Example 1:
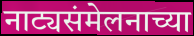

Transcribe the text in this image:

नाट्यसंमेलनाच्या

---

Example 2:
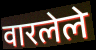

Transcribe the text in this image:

वारलेले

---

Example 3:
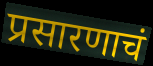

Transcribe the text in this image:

प्रसारणाचं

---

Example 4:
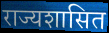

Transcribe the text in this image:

राज्यशासित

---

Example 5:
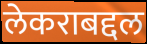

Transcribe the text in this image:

लेकराबद्दल